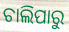
ଚାଲିପାରୁ